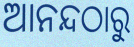
ଆନନ୍ଦଠାରୁ